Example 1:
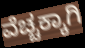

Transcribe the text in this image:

ವೆಚ್ಚಕ್ಕಾಗಿ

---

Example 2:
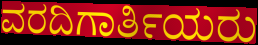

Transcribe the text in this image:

ವರದಿಗಾರ್ತಿಯರು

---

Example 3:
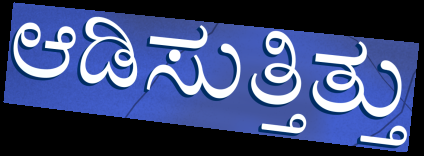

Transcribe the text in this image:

ಆಡಿಸುತ್ತಿತ್ತು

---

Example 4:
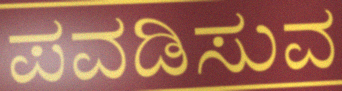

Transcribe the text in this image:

ಪವಡಿಸುವ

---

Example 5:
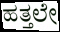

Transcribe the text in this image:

ಹತ್ತಲೇ